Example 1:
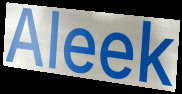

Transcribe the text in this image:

Aleek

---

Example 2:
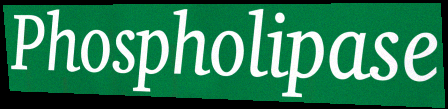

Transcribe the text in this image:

Phospholipase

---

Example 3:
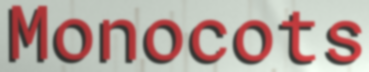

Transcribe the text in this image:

Monocots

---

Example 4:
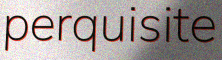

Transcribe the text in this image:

perquisite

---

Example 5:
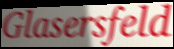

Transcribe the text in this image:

Glasersfeld